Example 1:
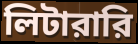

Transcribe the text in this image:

লিটারারি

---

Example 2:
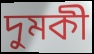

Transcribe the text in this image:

দুমকী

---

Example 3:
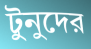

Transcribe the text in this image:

টুনুদের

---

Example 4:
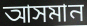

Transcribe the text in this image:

আসমান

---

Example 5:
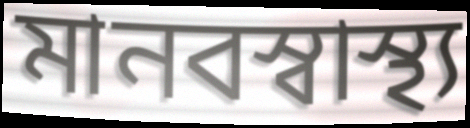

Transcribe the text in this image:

মানবস্বাস্থ্য